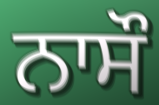
ਨਾਸੌ